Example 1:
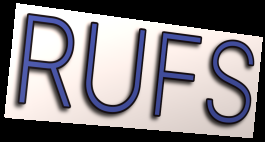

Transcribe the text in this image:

RUFS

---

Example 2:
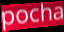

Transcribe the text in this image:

pocha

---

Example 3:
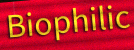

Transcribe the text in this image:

Biophilic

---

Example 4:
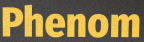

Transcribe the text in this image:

Phenom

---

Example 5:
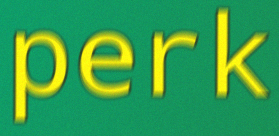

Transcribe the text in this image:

perk